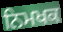
ਨਿਮਖਕ